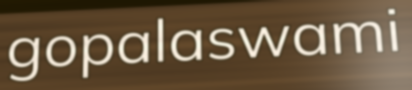
gopalaswami